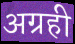
अग्रही